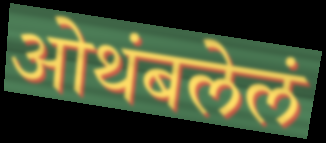
ओथंबलेलं